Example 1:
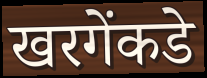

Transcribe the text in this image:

खरगेंकडे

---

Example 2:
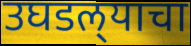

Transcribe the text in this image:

उघडल्याचा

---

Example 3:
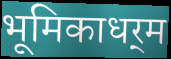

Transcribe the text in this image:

भूमिकाधर्म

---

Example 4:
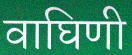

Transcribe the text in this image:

वाघिणी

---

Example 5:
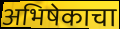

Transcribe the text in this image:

अभिषेकाचा